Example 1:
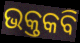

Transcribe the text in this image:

ଭକ୍ତକବି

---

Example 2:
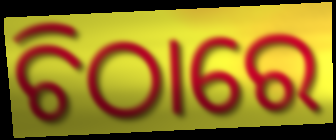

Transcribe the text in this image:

ଚିଠାରେ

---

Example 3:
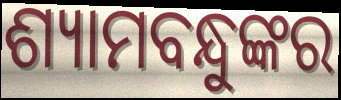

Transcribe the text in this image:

ଶ୍ୟାମବନ୍ଧୁଙ୍କର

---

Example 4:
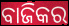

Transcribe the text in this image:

ବାଜିକର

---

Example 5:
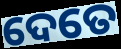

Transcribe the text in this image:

ଦେତେ